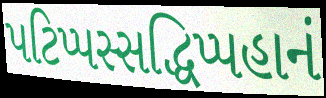
પટિપ્પસ્સદ્ધિપ્પહાનં